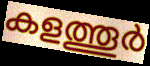
കളത്തൂർ